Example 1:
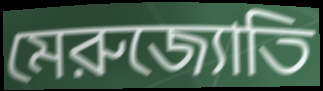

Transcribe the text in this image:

মেরুজ্যোতি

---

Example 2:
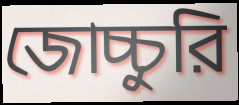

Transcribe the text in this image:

জোচ্চুরি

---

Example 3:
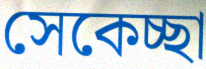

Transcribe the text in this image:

সেকেচ্ছা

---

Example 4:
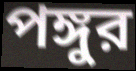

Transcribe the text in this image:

পঙ্গুর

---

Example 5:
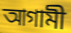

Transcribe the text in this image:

আগামী